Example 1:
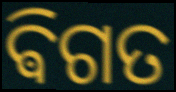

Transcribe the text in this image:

ଵିଗତ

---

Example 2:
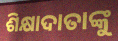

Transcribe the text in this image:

ଶିକ୍ଷାଦାତାଙ୍କୁ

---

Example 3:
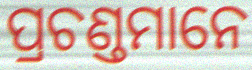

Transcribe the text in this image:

ପ୍ରଚଣ୍ଡମାନେ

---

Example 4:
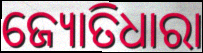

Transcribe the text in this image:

ଜ୍ଯୋତିଧାରା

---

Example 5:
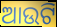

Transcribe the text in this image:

ଆଉଟି